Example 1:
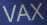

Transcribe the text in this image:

VAX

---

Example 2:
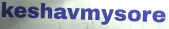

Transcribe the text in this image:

keshavmysore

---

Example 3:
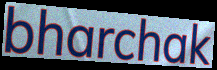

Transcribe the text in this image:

bharchak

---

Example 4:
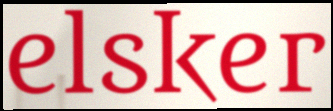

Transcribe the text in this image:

elsker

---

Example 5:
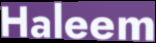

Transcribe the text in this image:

Haleem